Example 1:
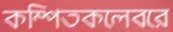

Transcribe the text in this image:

কম্পিতকলেবরে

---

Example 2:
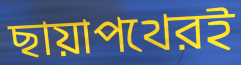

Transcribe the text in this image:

ছায়াপথেরই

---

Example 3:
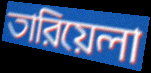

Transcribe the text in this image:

তারিয়েলা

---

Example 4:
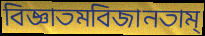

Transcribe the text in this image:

বিজ্ঞাতমবিজানতাম্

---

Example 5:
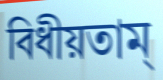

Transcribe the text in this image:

বিধীয়তাম্